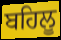
ਬਹਿਲੂ